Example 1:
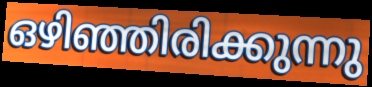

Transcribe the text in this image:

ഒഴിഞ്ഞിരിക്കുന്നു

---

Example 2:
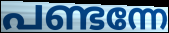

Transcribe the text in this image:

പണ്ടന്നേ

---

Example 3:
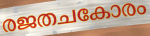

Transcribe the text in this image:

രജതചകോരം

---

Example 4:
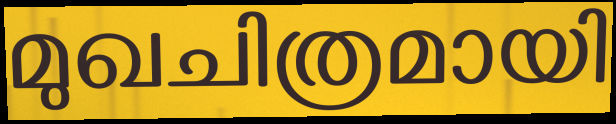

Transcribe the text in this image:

മുഖചിത്രമായി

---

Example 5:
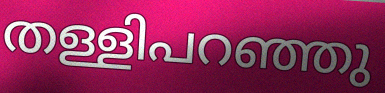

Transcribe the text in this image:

തള്ളിപറഞ്ഞു